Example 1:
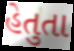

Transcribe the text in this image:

હેતુતા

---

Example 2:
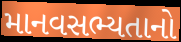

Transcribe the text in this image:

માનવસભ્યતાનો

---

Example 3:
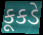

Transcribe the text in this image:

કૂકડે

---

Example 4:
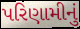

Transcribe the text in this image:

પરિણામીનું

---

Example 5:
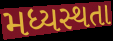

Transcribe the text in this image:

મધ્યસ્થતા